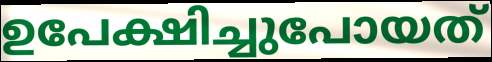
ഉപേക്ഷിച്ചുപോയത്